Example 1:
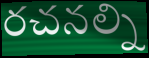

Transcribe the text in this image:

రచనల్ని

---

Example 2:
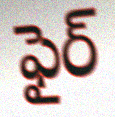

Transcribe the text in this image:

ఫైర్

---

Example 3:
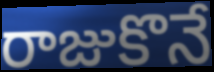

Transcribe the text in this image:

రాజుకొనే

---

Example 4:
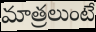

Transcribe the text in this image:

మాత్రలుంటే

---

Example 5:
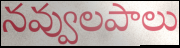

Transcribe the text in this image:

నవ్వులపాలు